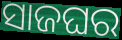
ସାଜଘର